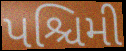
પશ્ચિમી